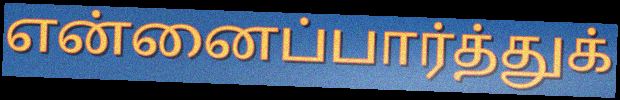
என்னைப்பார்த்துக்